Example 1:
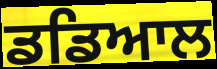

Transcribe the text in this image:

ਡਡਿਆਲ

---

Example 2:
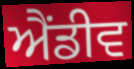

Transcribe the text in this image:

ਐਂਡੀਵ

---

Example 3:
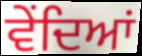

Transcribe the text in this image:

ਵੇਂਦਿਆਂ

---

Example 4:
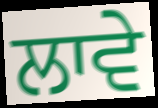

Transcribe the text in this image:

ਲਾਵੇ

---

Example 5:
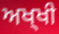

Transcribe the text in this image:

ਅਖ੍ਖੀ